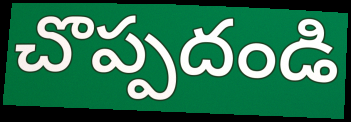
చొప్పదండి